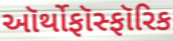
ઑર્થોફૉસ્ફૉરિક